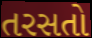
તરસતો